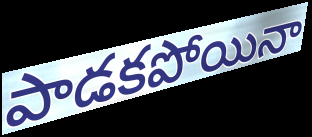
పాడకపోయినా